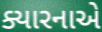
ક્યારનાએ